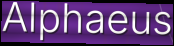
Alphaeus